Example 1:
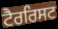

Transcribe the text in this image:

ਟੈਰਰਿਸਟ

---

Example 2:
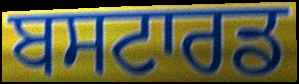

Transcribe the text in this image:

ਬਸਟਾਰਡ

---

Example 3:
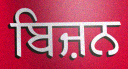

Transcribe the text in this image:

ਬਿਜ਼ਨ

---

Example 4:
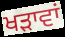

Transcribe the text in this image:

ਖੜਾਵਾਂ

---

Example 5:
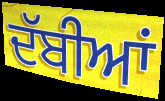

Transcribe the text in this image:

ਦੱਬੀਆਂ